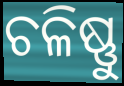
ଚଳିଷ୍ଣୁ